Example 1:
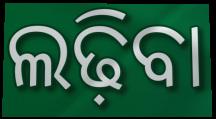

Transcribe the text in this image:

ଲଢ଼ିବା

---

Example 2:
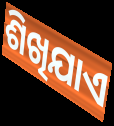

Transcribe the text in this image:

ଶିଖିଯାଏ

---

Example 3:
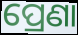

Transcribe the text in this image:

ପ୍ରେଣା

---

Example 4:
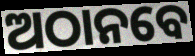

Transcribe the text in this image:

ଅଠାନବେ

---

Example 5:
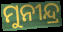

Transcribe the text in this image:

ମୁନୀନ୍ଦ୍ର